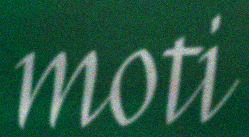
moti